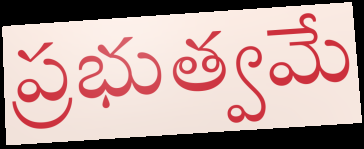
ప్రభుత్వమే